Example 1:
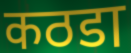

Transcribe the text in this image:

कठडा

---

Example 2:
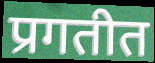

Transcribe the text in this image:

प्रगतीत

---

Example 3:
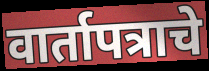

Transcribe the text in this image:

वार्तापत्राचे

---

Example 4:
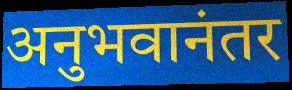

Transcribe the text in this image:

अनुभवानंतर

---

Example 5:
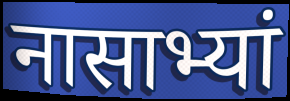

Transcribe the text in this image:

नासाभ्यां